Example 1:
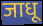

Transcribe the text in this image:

जाधू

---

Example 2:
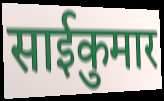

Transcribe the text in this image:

साईकुमार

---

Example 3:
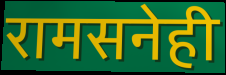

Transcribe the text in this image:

रामसनेही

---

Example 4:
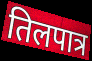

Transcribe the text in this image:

तिलपात्र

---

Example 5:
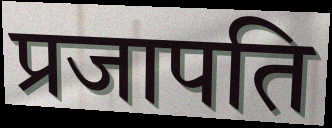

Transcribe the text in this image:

प्रजापति